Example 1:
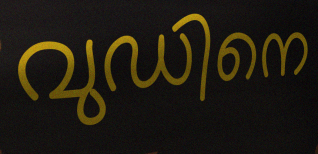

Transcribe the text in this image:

വുഡിനെ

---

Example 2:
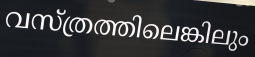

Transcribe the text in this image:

വസ്ത്രത്തിലെങ്കിലും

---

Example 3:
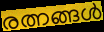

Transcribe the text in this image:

രത്നങ്ങൾ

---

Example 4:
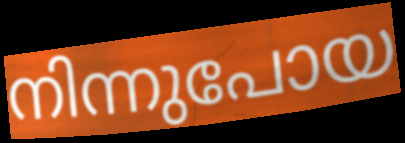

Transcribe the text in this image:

നിന്നുപോയ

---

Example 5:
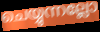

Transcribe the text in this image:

ചെയ്യുന്നല്ലോ